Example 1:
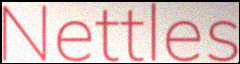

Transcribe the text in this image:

Nettles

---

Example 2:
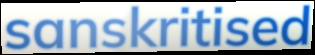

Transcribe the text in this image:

sanskritised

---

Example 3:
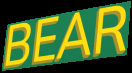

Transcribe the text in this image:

BEAR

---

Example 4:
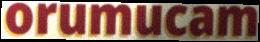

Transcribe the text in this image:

orumucam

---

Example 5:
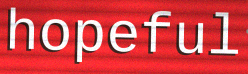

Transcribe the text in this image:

hopeful